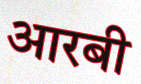
आरबी